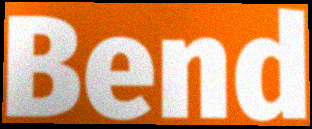
Bend